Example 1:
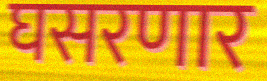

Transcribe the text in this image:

घसरणार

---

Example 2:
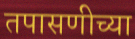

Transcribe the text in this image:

तपासणीच्या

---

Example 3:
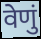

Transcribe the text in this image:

वेणुं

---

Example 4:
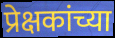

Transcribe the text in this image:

प्रेक्षकांच्या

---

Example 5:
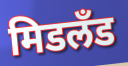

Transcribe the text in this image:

मिडलँड